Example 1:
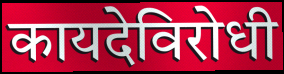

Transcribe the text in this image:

कायदेविरोधी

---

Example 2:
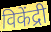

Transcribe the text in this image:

विकेंद्री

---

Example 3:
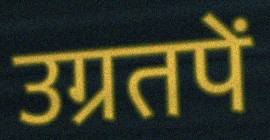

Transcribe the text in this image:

उग्रतपें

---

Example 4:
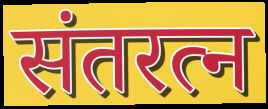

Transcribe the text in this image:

संतरत्न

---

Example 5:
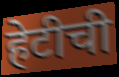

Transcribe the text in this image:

हेटीची